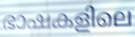
ഭാഷകളിലെ